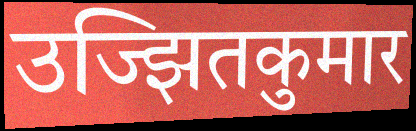
उज्झितकुमार